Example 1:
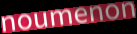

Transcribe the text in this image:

noumenon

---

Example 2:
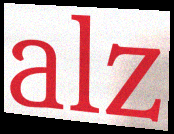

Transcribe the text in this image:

alz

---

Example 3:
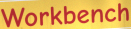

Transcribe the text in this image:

Workbench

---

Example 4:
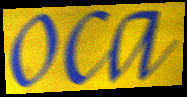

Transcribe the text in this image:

oca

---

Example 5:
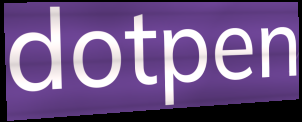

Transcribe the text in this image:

dotpen